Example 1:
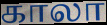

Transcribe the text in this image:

காலா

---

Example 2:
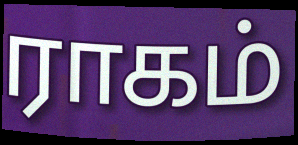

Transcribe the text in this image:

ராகம்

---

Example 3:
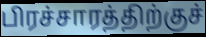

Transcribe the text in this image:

பிரச்சாரத்திற்குச்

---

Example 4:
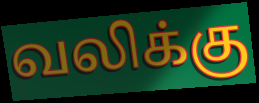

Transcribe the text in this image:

வலிக்கு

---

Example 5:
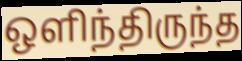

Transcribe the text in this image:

ஒளிந்திருந்த